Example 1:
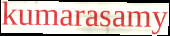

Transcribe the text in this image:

kumarasamy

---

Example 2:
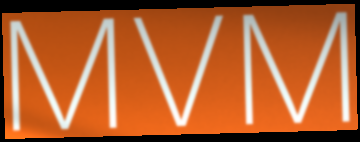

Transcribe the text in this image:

MVM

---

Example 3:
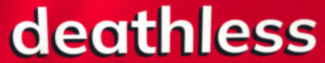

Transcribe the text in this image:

deathless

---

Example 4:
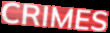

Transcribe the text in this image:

CRIMES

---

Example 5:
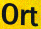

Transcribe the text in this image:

Ort